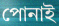
পোনাই